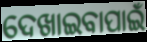
ଦେଖାଇବାପାଇଁ